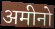
अमीनो